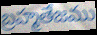
బ్రహ్మతేజము